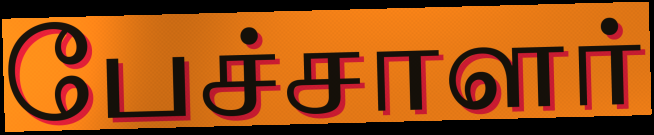
பேச்சாளர்